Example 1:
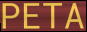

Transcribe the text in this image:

PETA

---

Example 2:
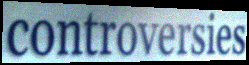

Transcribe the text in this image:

controversies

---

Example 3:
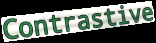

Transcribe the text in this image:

Contrastive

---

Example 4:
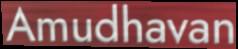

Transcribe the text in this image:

Amudhavan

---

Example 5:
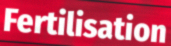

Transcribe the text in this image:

Fertilisation